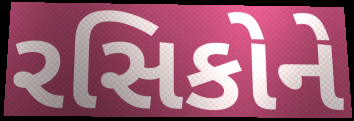
રસિકોને